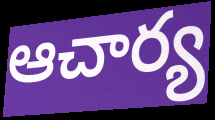
ఆచార్య